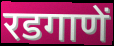
रडगाणें